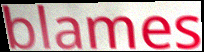
blames